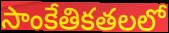
సాంకేతికతలలో